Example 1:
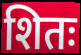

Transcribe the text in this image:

शितः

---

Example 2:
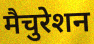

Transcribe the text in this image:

मैचुरेशन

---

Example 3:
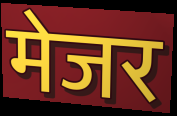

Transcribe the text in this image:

मेजर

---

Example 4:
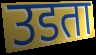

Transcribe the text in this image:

उडता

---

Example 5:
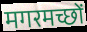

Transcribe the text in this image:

मगरमच्छों